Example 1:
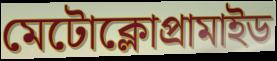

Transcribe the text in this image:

মেটোক্লোপ্রামাইড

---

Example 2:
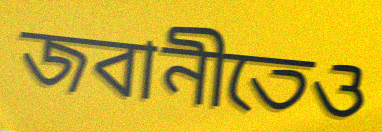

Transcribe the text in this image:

জবানীতেও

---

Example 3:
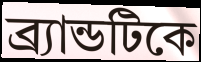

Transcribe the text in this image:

ব্র্যান্ডটিকে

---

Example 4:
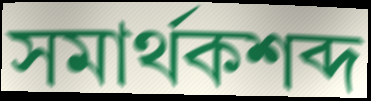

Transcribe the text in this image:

সমার্থকশব্দ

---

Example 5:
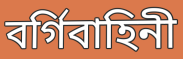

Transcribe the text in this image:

বর্গিবাহিনী